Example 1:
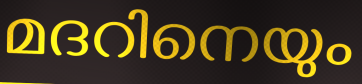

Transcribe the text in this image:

മദറിനെയും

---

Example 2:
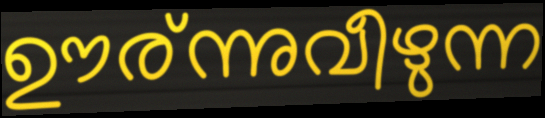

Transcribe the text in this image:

ഊര്ന്നുവീഴുന്ന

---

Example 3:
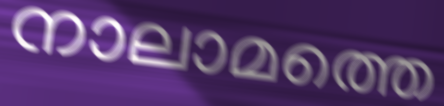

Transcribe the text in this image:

നാലാമത്തെ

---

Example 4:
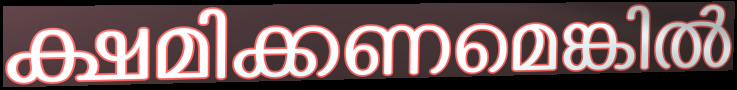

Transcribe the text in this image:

ക്ഷമിക്കണമെങ്കിൽ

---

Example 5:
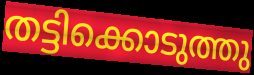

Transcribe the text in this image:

തട്ടിക്കൊടുത്തു